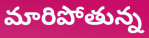
మారిపోతున్న